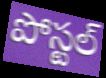
పోస్టల్